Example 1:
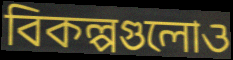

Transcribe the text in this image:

বিকল্পগুলোও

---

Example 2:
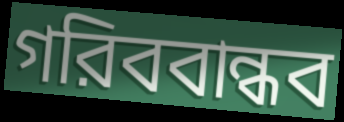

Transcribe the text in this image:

গরিববান্ধব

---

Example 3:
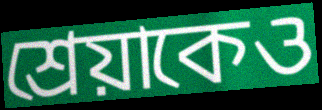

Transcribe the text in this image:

শ্রেয়াকেও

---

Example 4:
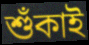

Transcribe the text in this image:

শুঁকাই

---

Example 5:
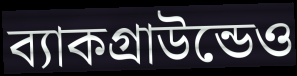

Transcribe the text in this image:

ব্যাকগ্রাউন্ডেও